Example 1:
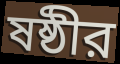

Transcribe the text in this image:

ষষ্ঠীর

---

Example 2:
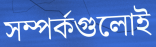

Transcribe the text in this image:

সম্পর্কগুলোই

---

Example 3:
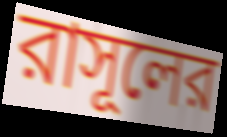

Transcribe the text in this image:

রাসূলের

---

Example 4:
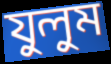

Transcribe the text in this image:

যুলুম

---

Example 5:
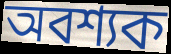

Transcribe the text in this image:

অবশ্যক